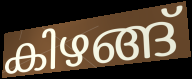
കിഴങ്ങ്